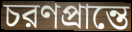
চরণপ্রান্তে